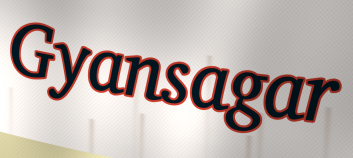
Gyansagar